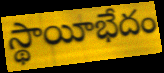
స్థాయీభేదం